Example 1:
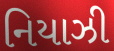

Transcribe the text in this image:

નિયાઝી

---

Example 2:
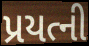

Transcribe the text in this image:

પ્રયત્ની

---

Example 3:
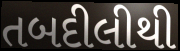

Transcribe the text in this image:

તબદીલીથી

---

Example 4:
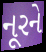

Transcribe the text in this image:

નૂરને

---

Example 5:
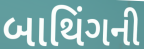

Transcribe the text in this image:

બાથિંગની